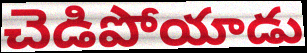
చెడిపోయాడు